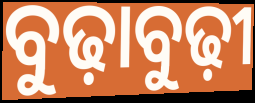
ବୁଢ଼ାବୁଢ଼ୀ